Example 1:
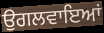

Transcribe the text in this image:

ਉਗਲਵਾਇਆਂ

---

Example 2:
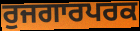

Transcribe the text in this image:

ਰੁਜਗਾਰਪਰਕ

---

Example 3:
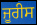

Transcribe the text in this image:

ਜੂਰੀਸ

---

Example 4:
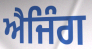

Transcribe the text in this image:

ਐਜਿੰਗ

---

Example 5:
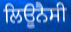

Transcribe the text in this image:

ਲਿਊਨੈਸੀ